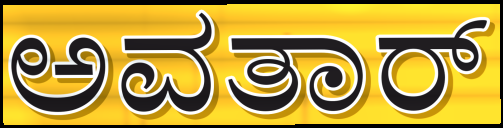
ಅವತಾರ್